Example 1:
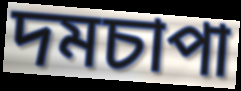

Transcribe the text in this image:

দমচাপা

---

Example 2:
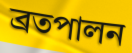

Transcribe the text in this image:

ব্রতপালন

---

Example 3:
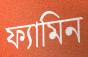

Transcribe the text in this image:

ফ্যামিন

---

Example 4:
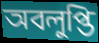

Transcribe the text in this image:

অবলুপ্তি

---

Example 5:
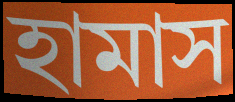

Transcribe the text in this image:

হামাস